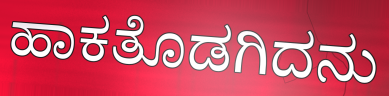
ಹಾಕತೊಡಗಿದನು